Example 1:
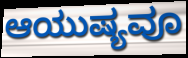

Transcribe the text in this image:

ಆಯುಷ್ಯವೂ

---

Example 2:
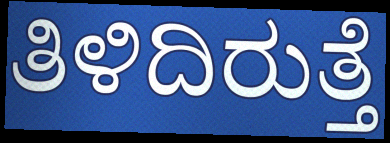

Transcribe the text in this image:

ತಿಳಿದಿರುತ್ತೆ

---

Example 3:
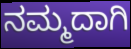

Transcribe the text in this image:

ನಮ್ಮದಾಗಿ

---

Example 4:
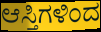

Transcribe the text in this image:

ಆಸ್ತಿಗಳಿಂದ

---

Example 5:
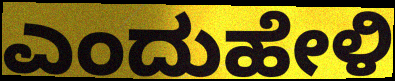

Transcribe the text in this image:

ಎಂದುಹೇಳಿ